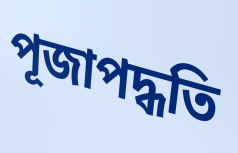
পূজাপদ্ধতি